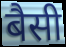
बैसी